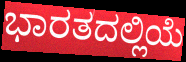
ಭಾರತದಲ್ಲಿಯೆ